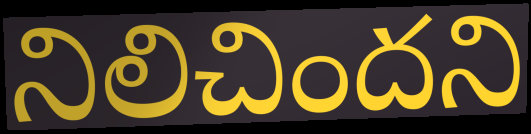
నిలిచిందని